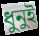
ধুনুই